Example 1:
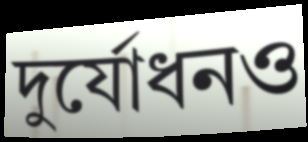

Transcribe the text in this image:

দুর্যোধনও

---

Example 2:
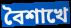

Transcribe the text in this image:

বৈশাখে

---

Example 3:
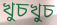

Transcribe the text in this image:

খুচখুচ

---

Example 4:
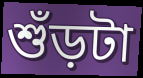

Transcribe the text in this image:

শুঁড়টা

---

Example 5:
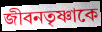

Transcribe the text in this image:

জীবনতৃষ্ণাকে